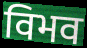
विभव